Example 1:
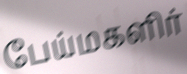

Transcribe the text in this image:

பேய்மகளிர்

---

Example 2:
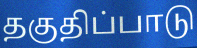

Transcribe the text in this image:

தகுதிப்பாடு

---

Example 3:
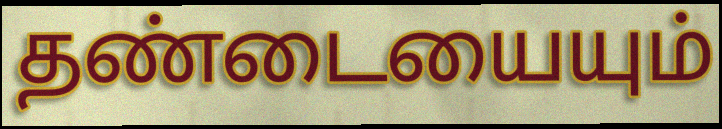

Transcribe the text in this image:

தண்டையையும்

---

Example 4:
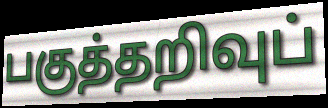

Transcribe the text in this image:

பகுத்தறிவுப்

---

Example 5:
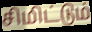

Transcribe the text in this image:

சிமிட்டும்